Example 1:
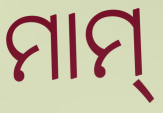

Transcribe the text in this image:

ମାମ୍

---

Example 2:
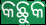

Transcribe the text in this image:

କଛୁକ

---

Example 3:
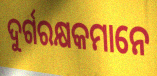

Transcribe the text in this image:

ଦୁର୍ଗରକ୍ଷକମାନେ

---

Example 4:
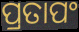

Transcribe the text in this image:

ପ୍ରତାପଂ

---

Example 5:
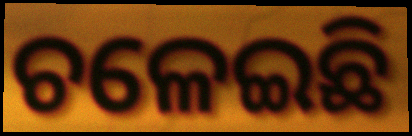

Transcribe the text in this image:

ଚଳେଇଛି